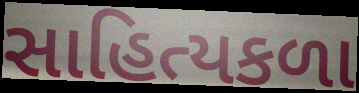
સાહિત્યકળા